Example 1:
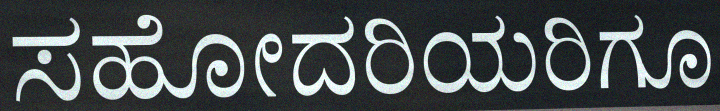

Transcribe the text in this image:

ಸಹೋದರಿಯರಿಗೂ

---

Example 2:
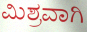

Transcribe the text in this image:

ಮಿಶ್ರವಾಗಿ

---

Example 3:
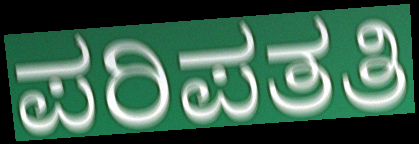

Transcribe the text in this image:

ಪರಿಪತತಿ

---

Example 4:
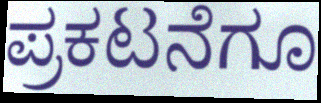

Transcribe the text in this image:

ಪ್ರಕಟನೆಗೂ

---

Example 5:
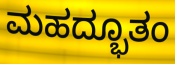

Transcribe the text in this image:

ಮಹದ್ಭೂತಂ